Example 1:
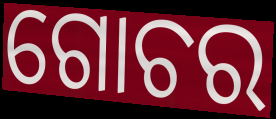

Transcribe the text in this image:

ଗୋଚର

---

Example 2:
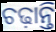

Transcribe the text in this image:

ଚଢ଼ାନ୍ତି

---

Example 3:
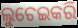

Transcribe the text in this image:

ଲୁଚେଇକରି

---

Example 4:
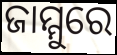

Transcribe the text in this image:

ଜାମ୍ମୁରେ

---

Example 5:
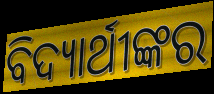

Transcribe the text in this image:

ବିଦ୍ୟାର୍ଥୀଙ୍କର